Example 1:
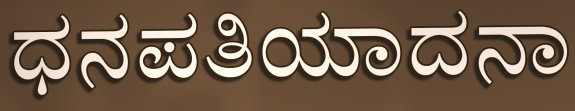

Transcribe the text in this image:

ಧನಪತಿಯಾದನಾ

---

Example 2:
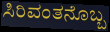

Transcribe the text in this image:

ಸಿರಿವಂತನೊಬ್ಬ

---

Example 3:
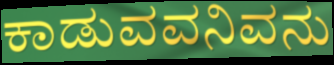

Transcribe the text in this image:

ಕಾಡುವವನಿವನು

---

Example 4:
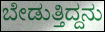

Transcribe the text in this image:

ಬೇಡುತ್ತಿದ್ದನು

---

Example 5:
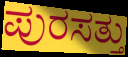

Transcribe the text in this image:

ಪುರಸತ್ತು